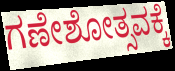
ಗಣೇಶೋತ್ಸವಕ್ಕೆ